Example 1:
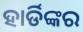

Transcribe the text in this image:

ହାର୍ଡିଙ୍କର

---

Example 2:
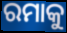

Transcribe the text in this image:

ରମାକୁ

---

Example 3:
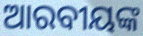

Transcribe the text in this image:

ଆରବୀୟଙ୍କ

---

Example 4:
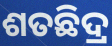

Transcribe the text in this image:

ଶତଛିଦ୍ର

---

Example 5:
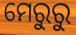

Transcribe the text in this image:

ମେରୁରୁ